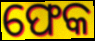
ଫେକ